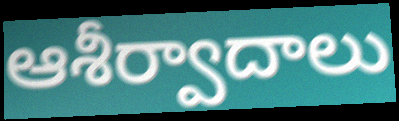
ఆశీర్వాదాలు